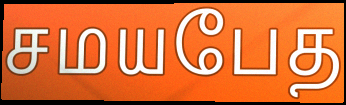
சமயபேத